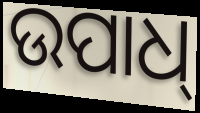
ଉପାଧ୍